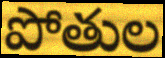
పోతుల